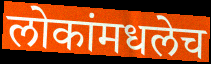
लोकांमधलेच